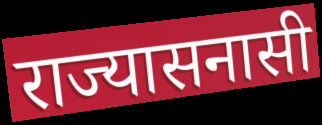
राज्यासनासी